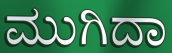
ಮುಗಿದಾ